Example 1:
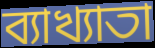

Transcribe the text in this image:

ব্যাখ্যাতা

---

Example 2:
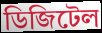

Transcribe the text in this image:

ডিজিটেল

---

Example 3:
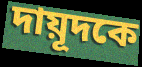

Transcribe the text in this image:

দায়ূদকে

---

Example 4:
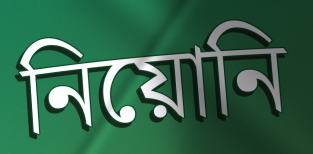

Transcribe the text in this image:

নিয়োনি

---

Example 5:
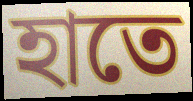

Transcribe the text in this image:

হাতে